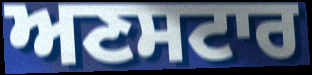
ਅਣਸਟਾਰ